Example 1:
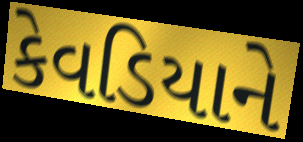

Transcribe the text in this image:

કેવડિયાને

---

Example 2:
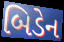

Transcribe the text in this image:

બિડેન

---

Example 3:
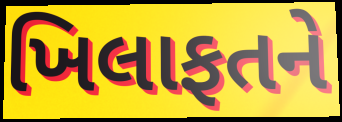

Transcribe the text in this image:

ખિલાફતને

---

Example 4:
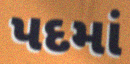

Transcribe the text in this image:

પદમાં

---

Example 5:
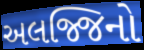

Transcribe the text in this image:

અલજ્જિનો